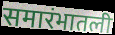
समारंभातली